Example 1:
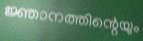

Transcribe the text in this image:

ജ്ഞാനത്തിന്റെയും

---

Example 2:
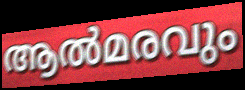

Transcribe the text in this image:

ആൽമരവും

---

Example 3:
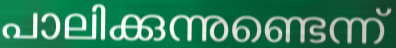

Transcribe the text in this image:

പാലിക്കുന്നുണ്ടെന്ന്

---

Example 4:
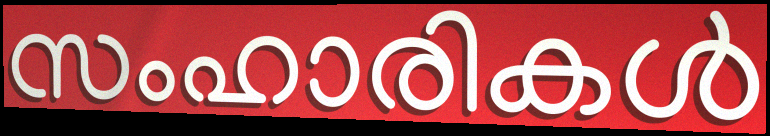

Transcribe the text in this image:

സംഹാരികൾ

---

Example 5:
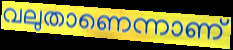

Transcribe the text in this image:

വലുതാണെന്നാണ്